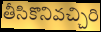
తీసికొనివచ్చిరి